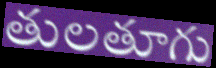
తులతూగు